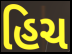
હિચ